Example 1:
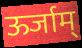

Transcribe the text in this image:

ऊर्जाम्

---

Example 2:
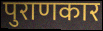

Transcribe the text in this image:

पुराणकार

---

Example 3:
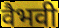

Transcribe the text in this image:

वैभवी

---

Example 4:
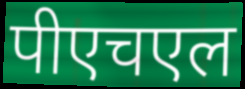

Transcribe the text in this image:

पीएचएल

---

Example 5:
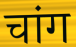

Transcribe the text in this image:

चांग